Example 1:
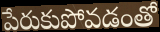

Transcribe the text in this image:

పేరుకుపోవడంతో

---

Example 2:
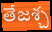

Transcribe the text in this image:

తేజశ్చ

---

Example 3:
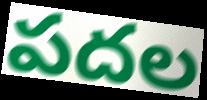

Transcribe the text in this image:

పదల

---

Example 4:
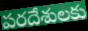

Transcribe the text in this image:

పరదేశులకు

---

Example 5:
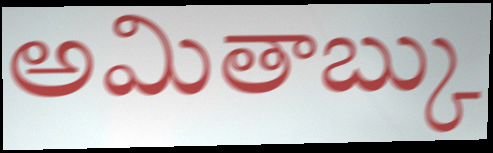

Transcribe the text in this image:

అమితాబ్కు